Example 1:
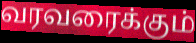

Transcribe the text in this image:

வரவரைக்கும்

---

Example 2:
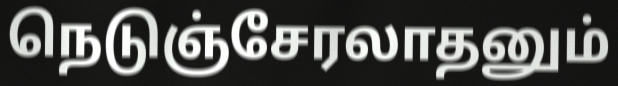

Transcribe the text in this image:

நெடுஞ்சேரலாதனும்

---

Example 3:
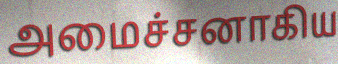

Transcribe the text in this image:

அமைச்சனாகிய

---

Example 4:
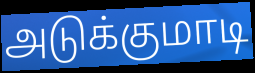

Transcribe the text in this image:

அடுக்குமாடி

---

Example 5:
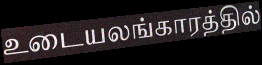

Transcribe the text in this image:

உடையலங்காரத்தில்